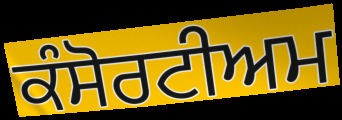
ਕੰਸੋਰਟੀਅਮ